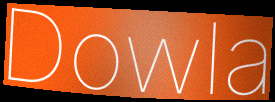
Dowla